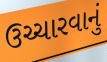
ઉચ્ચારવાનું